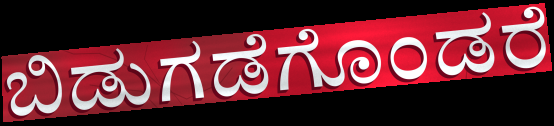
ಬಿಡುಗಡೆಗೊಂಡರೆ